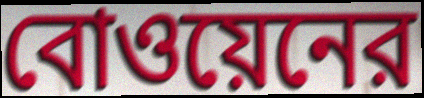
বোওয়েনের